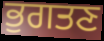
ਭੁਗਤਣ